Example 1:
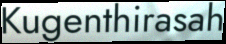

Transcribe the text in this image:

Kugenthirasah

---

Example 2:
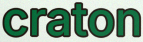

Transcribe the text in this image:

craton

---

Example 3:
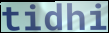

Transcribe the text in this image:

tidhi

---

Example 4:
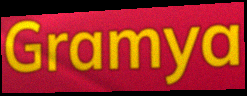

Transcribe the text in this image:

Gramya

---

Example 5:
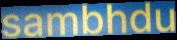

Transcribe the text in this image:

sambhdu